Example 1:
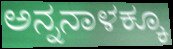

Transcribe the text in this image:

ಅನ್ನನಾಳಕ್ಕೂ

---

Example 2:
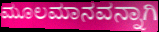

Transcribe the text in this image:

ಮೂಲಮಾನವನ್ನಾಗಿ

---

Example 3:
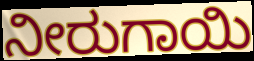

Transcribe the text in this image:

ನೀರುಗಾಯಿ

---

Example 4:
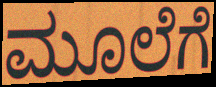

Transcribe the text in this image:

ಮೂಲೆಗೆ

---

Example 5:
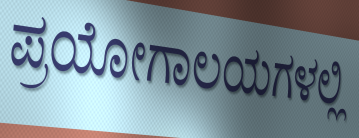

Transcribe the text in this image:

ಪ್ರಯೋಗಾಲಯಗಳಲ್ಲಿ